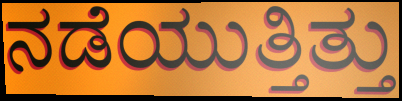
ನಡೆಯುತ್ತಿತ್ತು